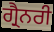
ਗ੍ਰੈਨਰੀ